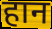
हान